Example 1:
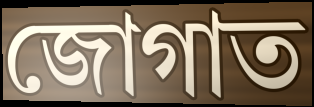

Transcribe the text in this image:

জোগাত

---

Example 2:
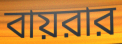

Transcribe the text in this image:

বায়রার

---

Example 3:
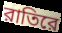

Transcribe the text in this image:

রাতিরে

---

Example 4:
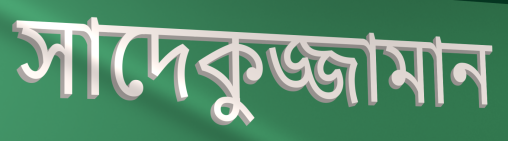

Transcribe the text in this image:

সাদেকুজ্জামান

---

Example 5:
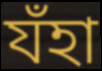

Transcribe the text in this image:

যঁহা